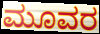
ಮೂವರ